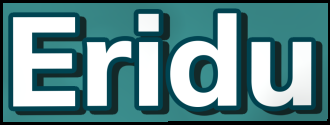
Eridu